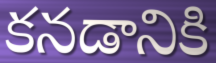
కనడానికి